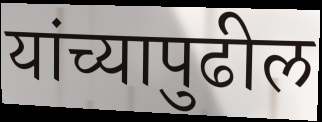
यांच्यापुढील